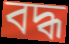
বদ্ধ